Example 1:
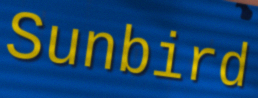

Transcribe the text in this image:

Sunbird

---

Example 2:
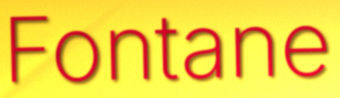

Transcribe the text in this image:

Fontane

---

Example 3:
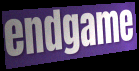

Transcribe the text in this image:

endgame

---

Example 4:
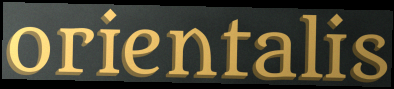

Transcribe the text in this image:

orientalis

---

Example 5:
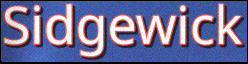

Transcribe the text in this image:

Sidgewick